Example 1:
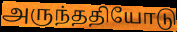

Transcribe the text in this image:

அருந்ததியோடு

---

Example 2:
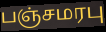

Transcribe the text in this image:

பஞ்சமரபு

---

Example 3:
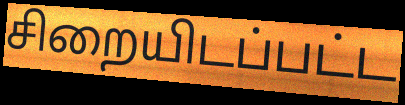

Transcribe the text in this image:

சிறையிடப்பட்ட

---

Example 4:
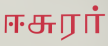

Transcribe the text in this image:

ஈசுரர்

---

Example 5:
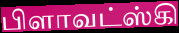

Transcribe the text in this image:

பிளாவட்ஸ்கி